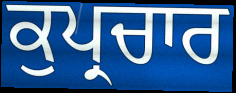
ਕੁਪ੍ਰਚਾਰ